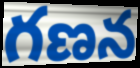
గణన